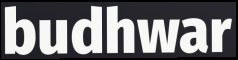
budhwar